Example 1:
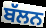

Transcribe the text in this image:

ਬੱਲਨ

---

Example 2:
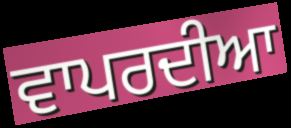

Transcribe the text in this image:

ਵਾਪਰਦੀਆ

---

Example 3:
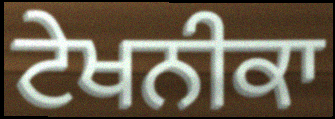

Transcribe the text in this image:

ਟੇਖਨੀਕਾ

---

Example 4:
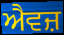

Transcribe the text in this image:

ਐਵਜ਼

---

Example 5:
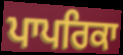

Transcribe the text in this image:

ਪਾਪਰਿਕਾ